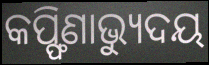
କପ୍ଫିଣାଭ୍ୟୁଦୟ